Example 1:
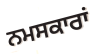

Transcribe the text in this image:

ਨਮਸਕਾਰਾਂ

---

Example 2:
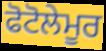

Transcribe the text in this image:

ਫੋਟੋਲੇਮੂਰ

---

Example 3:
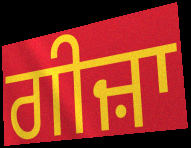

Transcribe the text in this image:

ਗੀਜ਼ਾ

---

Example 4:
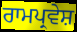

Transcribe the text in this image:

ਰਾਮਪ੍ਰਵੇਸ਼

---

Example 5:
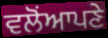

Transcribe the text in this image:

ਵਲੋਂਆਪਣੇ